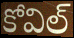
కోవిల్